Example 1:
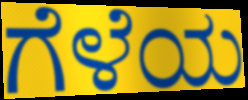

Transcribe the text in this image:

ಗೆಳೆಯ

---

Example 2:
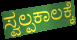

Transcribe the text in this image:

ಸ್ವಲ್ಪಕಾಲಕ್ಕೆ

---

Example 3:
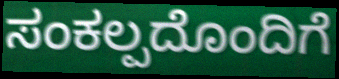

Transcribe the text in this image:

ಸಂಕಲ್ಪದೊಂದಿಗೆ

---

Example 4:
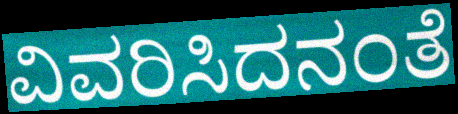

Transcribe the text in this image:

ವಿವರಿಸಿದನಂತೆ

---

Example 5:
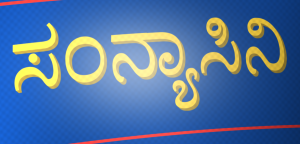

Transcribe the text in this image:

ಸಂನ್ಯಾಸಿನಿ